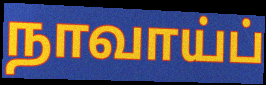
நாவாய்ப்